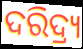
ଦରିଦ୍ର୍ୟ